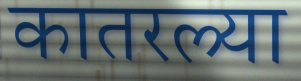
कातरल्या